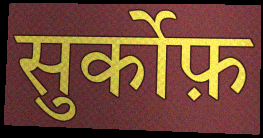
सुर्कोफ़